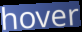
hover